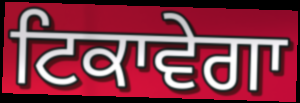
ਟਿਕਾਵੇਗਾ